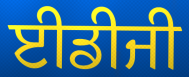
ਈਡੀਜੀ